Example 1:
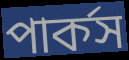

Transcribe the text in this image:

পার্কস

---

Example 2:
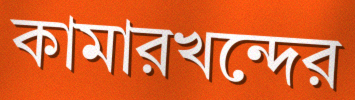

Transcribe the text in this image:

কামারখন্দের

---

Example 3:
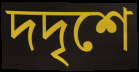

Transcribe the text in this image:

দদৃশে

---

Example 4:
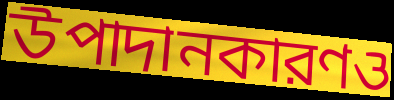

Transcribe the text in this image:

উপাদানকারণও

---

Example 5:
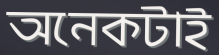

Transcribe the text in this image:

অনেকটাই